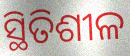
ସ୍ଥିତିଶୀଳ